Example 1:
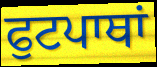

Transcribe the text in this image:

ਫੁਟਪਾਥਾਂ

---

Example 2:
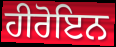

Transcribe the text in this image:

ਹੀਰੋਇਨ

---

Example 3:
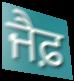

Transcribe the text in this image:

ਜੈਫ਼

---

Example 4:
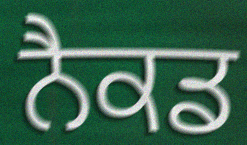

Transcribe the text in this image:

ਨੈਕਡ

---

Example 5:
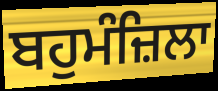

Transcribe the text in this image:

ਬਹੁਮੰਜ਼ਿਲਾ